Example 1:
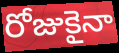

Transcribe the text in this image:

రోజుకైనా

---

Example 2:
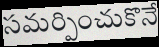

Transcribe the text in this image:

సమర్పించుకొనే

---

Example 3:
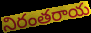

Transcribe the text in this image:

నిరంతరాయ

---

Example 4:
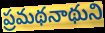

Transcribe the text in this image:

ప్రమథనాథుని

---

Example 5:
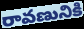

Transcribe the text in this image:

రావణునికి